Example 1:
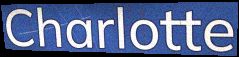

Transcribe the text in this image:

Charlotte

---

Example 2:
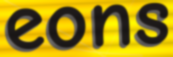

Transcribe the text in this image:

eons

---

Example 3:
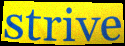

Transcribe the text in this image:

strive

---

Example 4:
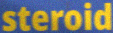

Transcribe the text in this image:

steroid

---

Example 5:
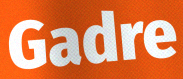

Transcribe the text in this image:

Gadre